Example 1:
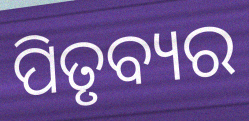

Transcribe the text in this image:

ପିତୃବ୍ୟର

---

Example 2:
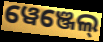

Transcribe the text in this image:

ୱେଞ୍ଜେଲ୍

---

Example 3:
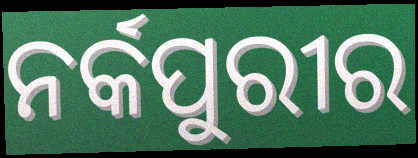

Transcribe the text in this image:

ନର୍କପୁରୀର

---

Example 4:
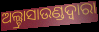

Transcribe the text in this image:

ଅଲ୍ଟ୍ରାସାଉଣ୍ଡଦ୍ୱାରା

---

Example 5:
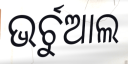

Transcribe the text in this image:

ଭର୍ଚୁଆଲ